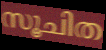
സൂചിത